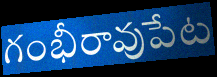
గంభీరావుపేట